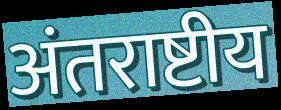
अंतराष्टीय